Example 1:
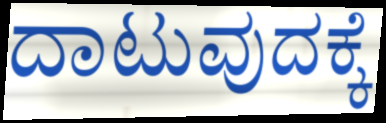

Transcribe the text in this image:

ದಾಟುವುದಕ್ಕೆ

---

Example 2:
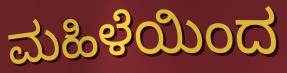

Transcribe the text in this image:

ಮಹಿಳೆಯಿಂದ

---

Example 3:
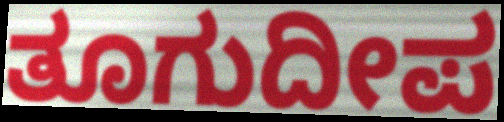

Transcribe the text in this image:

ತೂಗುದೀಪ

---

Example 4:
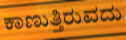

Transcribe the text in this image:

ಕಾಣುತ್ತಿರುವದು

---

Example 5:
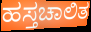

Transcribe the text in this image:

ಹಸ್ತಚಾಲಿತ